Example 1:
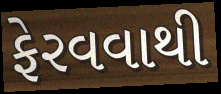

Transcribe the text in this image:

ફેરવવાથી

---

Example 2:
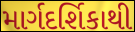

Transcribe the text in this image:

માર્ગદર્શિકાથી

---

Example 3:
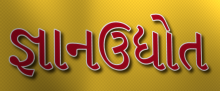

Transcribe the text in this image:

જ્ઞાનઉદ્યોત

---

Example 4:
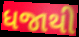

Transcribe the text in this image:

ધજાથી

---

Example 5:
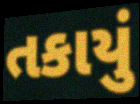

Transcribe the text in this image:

તકાયું